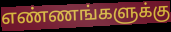
எண்ணங்களுக்கு